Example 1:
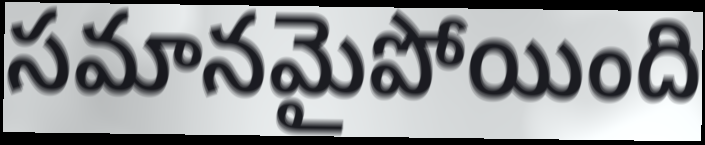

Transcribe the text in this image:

సమానమైపోయింది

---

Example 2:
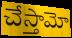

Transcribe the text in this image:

చేస్తామో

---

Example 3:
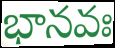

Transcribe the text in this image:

భానవః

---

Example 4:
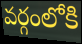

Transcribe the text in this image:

వర్గంలోకి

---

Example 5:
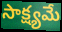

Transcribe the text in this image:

సాక్ష్యమే